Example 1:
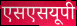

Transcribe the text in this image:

एसएसयूपी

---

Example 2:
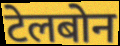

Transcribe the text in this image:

टेलबोन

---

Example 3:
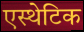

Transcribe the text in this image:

एस्थेटिक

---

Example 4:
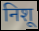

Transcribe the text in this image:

निशू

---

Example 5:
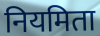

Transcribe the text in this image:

नियमिता